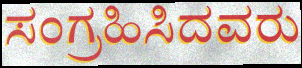
ಸಂಗ್ರಹಿಸಿದವರು